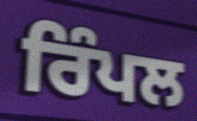
ਰਿੰਪਲ